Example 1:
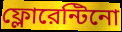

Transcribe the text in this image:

ফ্লোরেন্টিনো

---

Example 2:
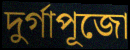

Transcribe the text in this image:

দুর্গাপূজো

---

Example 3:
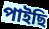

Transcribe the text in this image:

পাইছি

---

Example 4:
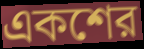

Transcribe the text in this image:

একশের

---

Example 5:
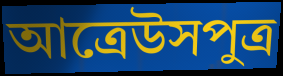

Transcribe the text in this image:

আত্রেউসপুত্র